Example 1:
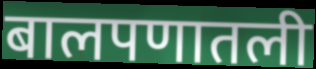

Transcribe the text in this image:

बालपणातली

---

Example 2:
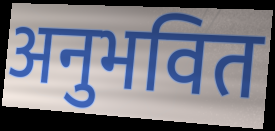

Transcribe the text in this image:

अनुभवित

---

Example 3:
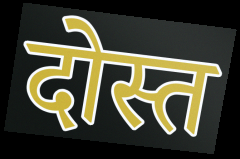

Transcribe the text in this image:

दोस्त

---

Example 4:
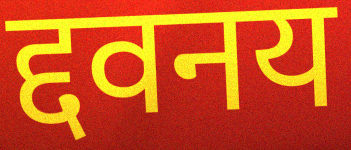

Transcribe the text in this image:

द्दवनय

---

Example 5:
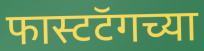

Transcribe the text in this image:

फास्टटॅगच्या